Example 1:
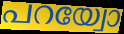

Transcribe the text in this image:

പറയ്വോ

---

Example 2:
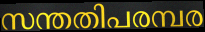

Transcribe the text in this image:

സന്തതിപരമ്പര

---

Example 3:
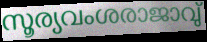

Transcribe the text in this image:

സൂര്യവംശരാജാവു്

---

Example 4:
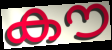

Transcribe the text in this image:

കൗ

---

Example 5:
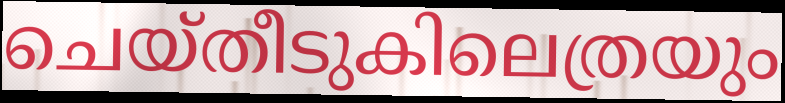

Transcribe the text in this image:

ചെയ്തീടുകിലെത്രയും